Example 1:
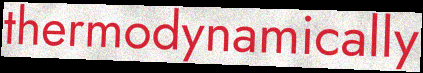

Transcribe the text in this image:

thermodynamically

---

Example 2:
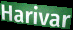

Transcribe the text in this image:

Harivar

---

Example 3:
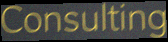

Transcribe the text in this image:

Consulting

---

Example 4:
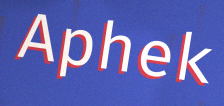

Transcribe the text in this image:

Aphek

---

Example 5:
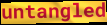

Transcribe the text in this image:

untangled